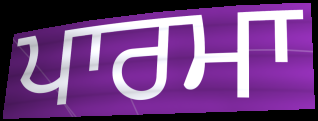
ਪਾਰਮਾ